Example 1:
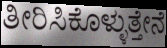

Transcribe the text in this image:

ತೀರಿಸಿಕೊಳ್ಳುತ್ತೇನೆ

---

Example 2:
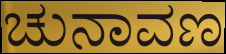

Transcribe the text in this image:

ಚುನಾವಣ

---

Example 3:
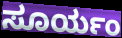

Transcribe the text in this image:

ಸೂರ್ಯಂ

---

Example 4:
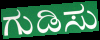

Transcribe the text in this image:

ಗುಡಿಸು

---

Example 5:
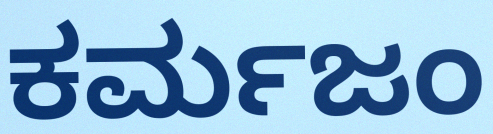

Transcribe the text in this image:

ಕರ್ಮಜಂ